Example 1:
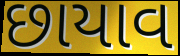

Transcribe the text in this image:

છાયાવ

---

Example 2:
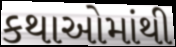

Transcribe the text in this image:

કથાઓમાંથી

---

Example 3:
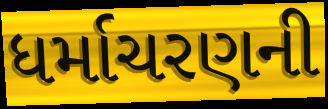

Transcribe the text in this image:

ધર્માચરણની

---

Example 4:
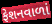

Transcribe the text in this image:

ફેશનવાળાં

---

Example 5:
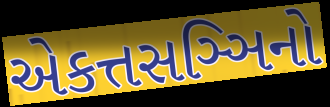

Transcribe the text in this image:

એકત્તસઞ્ઞિનો